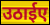
उठाईए